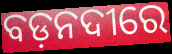
ବଡ଼ନଦୀରେ